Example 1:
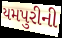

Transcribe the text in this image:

યમપુરીની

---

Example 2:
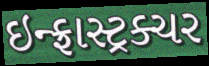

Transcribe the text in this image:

ઇન્ફ્રાસ્ટ્રક્ચર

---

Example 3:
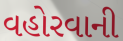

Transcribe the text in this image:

વહોરવાની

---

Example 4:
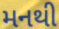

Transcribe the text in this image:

મનથી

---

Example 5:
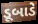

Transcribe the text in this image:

ડૂબાડે